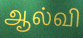
ஆல்வி